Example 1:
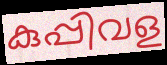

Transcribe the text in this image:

കുപ്പിവള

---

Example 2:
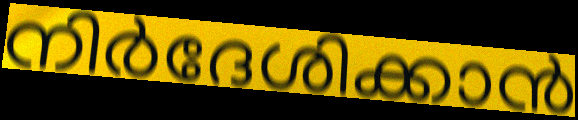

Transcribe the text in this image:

നിർദേശിക്കാൻ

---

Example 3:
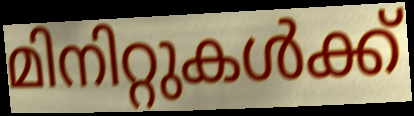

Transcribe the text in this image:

മിനിറ്റുകൾക്ക്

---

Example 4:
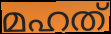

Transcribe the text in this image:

മഹത്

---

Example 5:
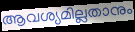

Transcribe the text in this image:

ആവശ്യമില്ലതാനും